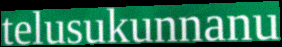
telusukunnanu